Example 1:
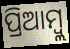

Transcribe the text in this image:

ପ୍ରିଆମ୍ବ୍ଲ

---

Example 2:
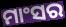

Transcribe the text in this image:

ମାଂସର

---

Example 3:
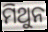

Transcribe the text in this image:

ମିଥୁନ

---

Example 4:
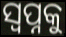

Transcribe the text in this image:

ସ୍ବପ୍ନକୁ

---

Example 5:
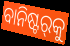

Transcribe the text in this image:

ବାନିଷ୍ଟର୍‍କୁ